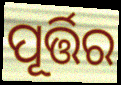
ପୂର୍ତ୍ତିର